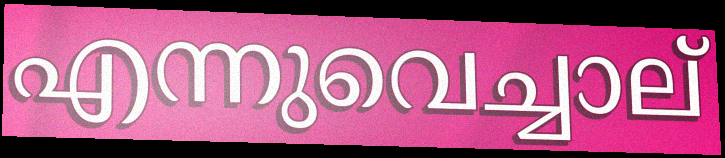
എന്നുവെച്ചാല്